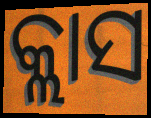
କ୍ଲାସ